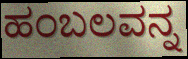
ಹಂಬಲವನ್ನ